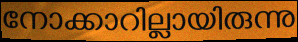
നോക്കാറില്ലായിരുന്നു